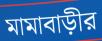
মামাবাড়ীর